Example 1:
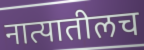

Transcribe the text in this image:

नात्यातीलच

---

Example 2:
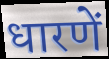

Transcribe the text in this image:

धारणें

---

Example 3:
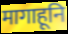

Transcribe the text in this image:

मागाहूनि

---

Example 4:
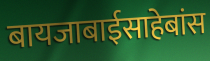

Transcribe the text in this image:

बायजाबाईसाहेबांस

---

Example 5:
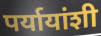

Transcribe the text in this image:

पर्यायांशी